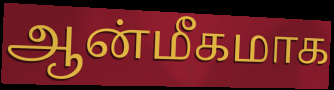
ஆன்மீகமாக